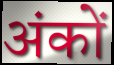
अंकों